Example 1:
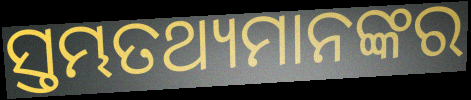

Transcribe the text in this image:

ସ୍ତମ୍ଭତଥ୍ୟମାନଙ୍କର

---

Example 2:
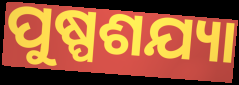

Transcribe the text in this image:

ପୁଷ୍ପଶଯ୍ୟା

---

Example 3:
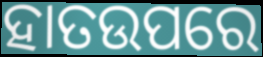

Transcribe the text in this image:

ହାତଉପରେ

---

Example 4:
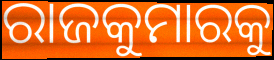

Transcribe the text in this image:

ରାଜକୁମାରକୁ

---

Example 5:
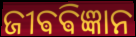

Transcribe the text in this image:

ଜୀଵଵିଜ୍ଞାନ